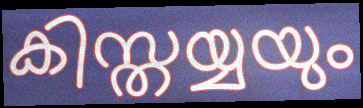
കിസ്തയ്യയും